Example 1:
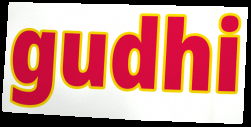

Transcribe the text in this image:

gudhi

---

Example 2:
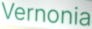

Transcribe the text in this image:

Vernonia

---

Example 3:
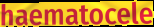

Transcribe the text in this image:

haematocele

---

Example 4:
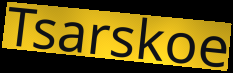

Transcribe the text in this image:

Tsarskoe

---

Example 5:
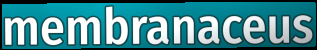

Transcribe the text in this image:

membranaceus